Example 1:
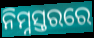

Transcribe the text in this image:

ନିମ୍ନସ୍ତରରେ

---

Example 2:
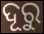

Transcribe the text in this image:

ଦୂରୁ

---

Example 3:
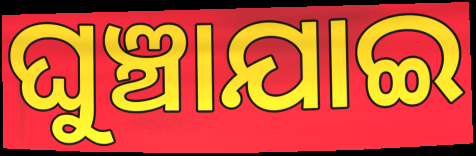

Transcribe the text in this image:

ଘୁଞ୍ଚାଯାଇ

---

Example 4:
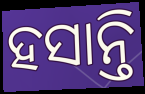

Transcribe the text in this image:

ହସାନ୍ତି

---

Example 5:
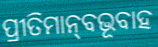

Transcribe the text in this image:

ପ୍ରୀତିମାନ୍‌ବଭୂବାହ